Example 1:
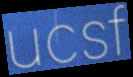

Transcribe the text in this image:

ucsf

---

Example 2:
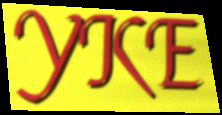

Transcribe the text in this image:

YKE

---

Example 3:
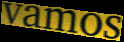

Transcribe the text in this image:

vamos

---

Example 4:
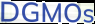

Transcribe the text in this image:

DGMOs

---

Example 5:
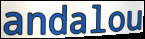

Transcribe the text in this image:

andalou